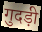
गुदड़ी